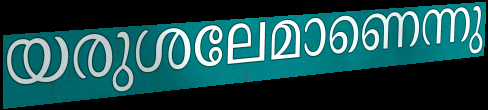
യരുശലേമാണെന്നു